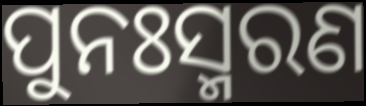
ପୁନଃସ୍ମରଣ